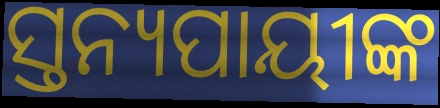
ସ୍ତନ୍ୟପାୟୀଙ୍କ